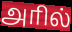
அரில்